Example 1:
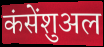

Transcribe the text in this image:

कंसेंशुअल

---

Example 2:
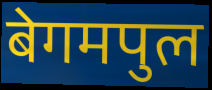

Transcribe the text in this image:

बेगमपुल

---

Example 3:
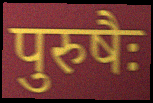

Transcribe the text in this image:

पुरुषैः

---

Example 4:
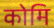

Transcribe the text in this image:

कोमि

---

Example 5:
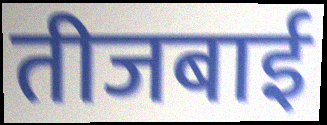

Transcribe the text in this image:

तीजबाई